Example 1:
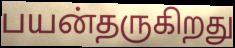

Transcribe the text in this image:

பயன்தருகிறது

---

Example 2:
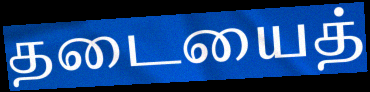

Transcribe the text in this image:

தடையைத்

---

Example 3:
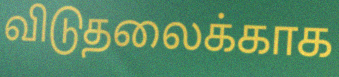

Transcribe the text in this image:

விடுதலைக்காக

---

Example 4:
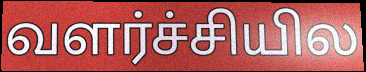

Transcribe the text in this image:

வளர்ச்சியில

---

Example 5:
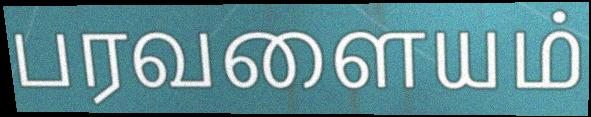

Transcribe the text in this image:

பரவளையம்